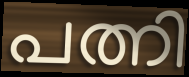
പത്നി